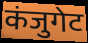
कंजुगेट